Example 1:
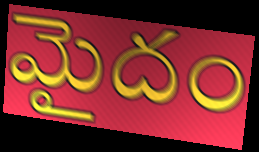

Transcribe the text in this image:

మైదం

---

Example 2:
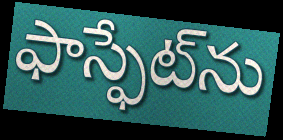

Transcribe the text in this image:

ఫాస్ఫేట్‌ను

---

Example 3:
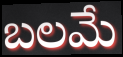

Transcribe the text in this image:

బలమే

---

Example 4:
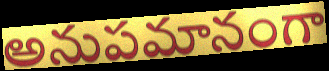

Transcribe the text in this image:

అనుపమానంగా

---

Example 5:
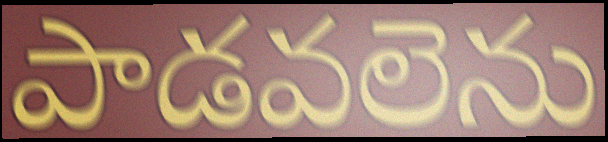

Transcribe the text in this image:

పాడవలెను